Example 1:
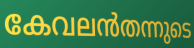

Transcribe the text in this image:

കേവലൻതന്നുടെ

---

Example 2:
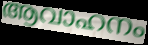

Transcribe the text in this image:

ആവാഹനം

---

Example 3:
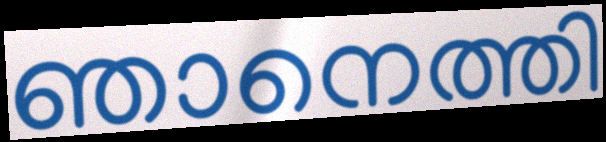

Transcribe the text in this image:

ഞാനെത്തി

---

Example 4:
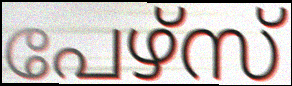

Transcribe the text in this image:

പേഴ്സ്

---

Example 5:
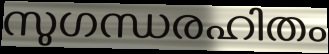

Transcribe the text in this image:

സുഗന്ധരഹിതം